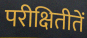
परीक्षितीतें